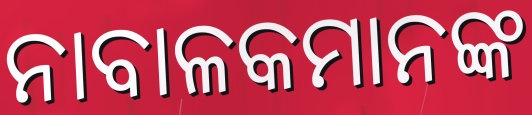
ନାବାଳକମାନଙ୍କ